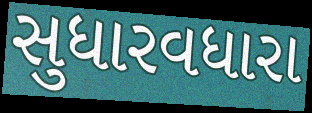
સુધારવધારા